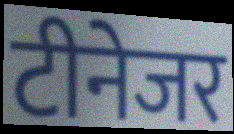
टीनेजर